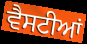
ਵੈਸਟੀਆਂ